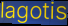
lagotis